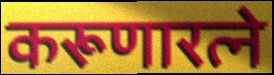
करूणारत्ने